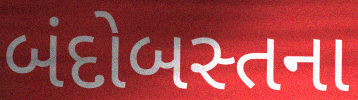
બંદોબસ્તના